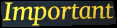
Important